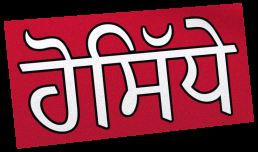
ਹੋਸਿੱਧੇ